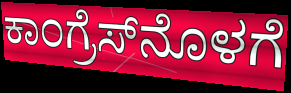
ಕಾಂಗ್ರೆಸ್‌ನೊಳಗೆ